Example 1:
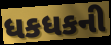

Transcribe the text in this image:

ધકધકની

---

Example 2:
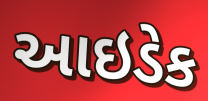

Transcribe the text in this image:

આઇડેક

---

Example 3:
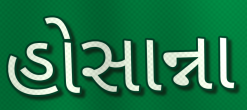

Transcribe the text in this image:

હોસાન્ના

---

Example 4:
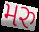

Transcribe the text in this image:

મરુ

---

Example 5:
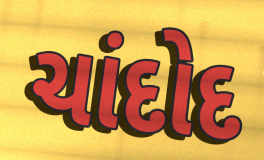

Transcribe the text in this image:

ચાંદોદ